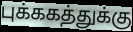
புக்ககத்துக்கு